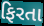
ફિરતા